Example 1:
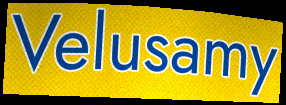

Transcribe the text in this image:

Velusamy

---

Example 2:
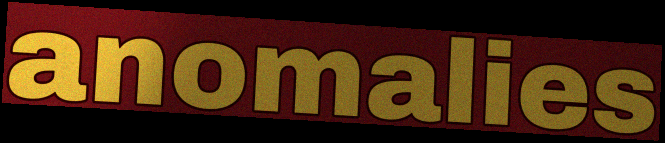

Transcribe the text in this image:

anomalies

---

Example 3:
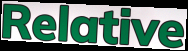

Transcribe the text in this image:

Relative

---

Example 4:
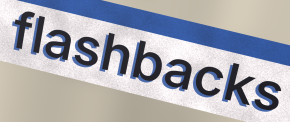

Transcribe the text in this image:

flashbacks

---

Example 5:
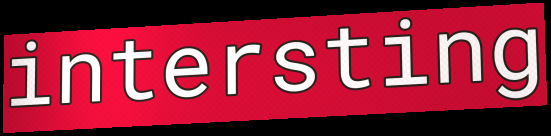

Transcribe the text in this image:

intersting